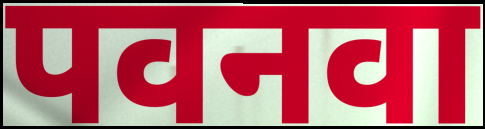
पवनवा